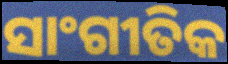
ସାଂଗୀତିକ